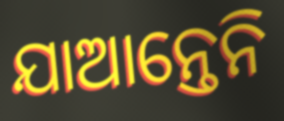
ଯାଆନ୍ତେନି